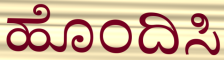
ಹೊಂದಿಸಿ